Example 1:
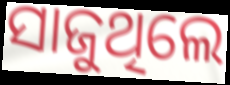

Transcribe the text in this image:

ସାଜୁଥିଲେ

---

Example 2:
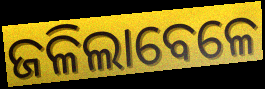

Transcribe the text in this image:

ଜଳିଲାବେଳେ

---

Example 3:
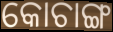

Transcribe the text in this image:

କୋଚାଙ୍ଗ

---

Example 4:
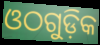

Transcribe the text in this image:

ଓଠଗୁଡ଼ିକ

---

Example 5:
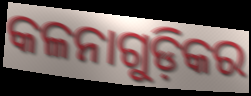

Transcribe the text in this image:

କଳନାଗୁଡ଼ିକର